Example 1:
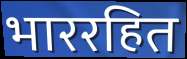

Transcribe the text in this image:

भाररहित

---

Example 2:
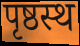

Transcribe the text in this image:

पृष्ठस्थ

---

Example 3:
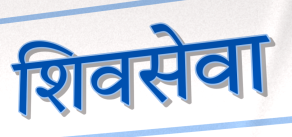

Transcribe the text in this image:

शिवसेवा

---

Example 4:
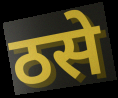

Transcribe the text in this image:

ठसे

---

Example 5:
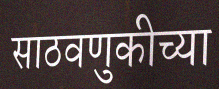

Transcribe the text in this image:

साठवणुकीच्या